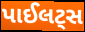
પાઈલટ્સ